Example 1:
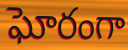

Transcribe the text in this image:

ఘోరంగా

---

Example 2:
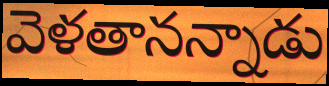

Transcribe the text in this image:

వెళతానన్నాడు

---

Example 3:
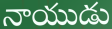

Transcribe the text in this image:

నాయుడు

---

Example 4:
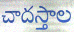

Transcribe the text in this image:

చాదస్తాల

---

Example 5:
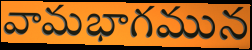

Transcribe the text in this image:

వామభాగమున